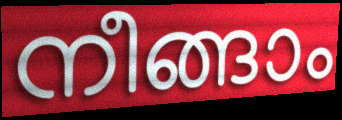
നീങ്ങാം